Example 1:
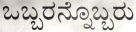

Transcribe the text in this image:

ಒಬ್ಬರನ್ನೊಬ್ಬರು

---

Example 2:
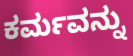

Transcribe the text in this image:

ಕರ್ಮವನ್ನು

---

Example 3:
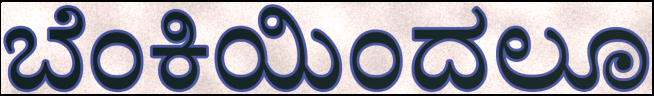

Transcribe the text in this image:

ಬೆಂಕಿಯಿಂದಲೂ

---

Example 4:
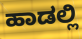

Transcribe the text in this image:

ಹಾಡಲ್ಲಿ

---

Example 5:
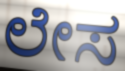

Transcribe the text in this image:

ಲೇಸ